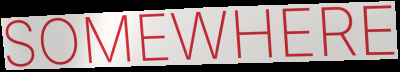
SOMEWHERE